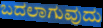
ಬದಲಾಗುವುದು